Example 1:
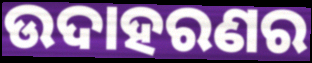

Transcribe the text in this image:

ଉଦାହରଣର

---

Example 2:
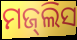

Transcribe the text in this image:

ମଜ୍‌ଲିସ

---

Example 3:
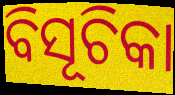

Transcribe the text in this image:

ବିସୂଚିକା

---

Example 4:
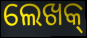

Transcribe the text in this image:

ଲେଖକ୍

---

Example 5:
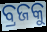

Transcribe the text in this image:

ବ୍ରଜକୁ